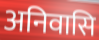
अनिवासि